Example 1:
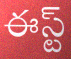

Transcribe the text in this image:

ఈస్ట్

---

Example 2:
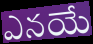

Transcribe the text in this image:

ఎనయే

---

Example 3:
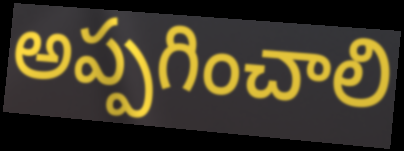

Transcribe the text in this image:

అప్పగించాలి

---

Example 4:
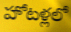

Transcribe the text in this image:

హోటళ్లలో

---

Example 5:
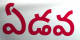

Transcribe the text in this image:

ఏడవ